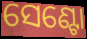
ସେଣ୍ଟୋ